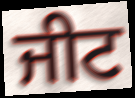
ਜੀਟ